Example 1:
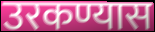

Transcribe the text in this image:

उरकण्यास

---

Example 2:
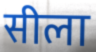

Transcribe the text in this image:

सीला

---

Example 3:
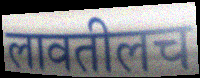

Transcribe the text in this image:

लावतीलच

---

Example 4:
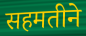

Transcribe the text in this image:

सहमतीने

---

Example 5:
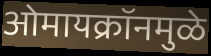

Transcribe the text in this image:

ओमायक्रॉनमुळे